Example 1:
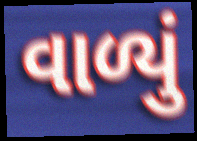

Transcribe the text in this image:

વાળ્યું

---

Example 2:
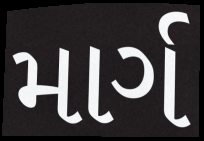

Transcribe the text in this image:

માર્ગ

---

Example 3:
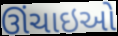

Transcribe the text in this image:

ઊંચાઇઓ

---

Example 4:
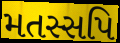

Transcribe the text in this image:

મતસ્સપિ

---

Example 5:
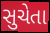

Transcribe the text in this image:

સુચેતા